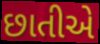
છાતીએ